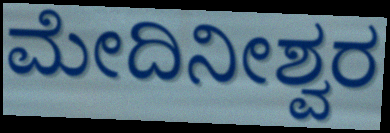
ಮೇದಿನೀಶ್ವರ